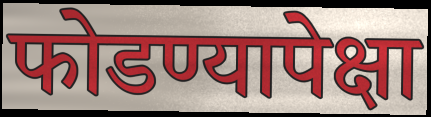
फोडण्यापेक्षा